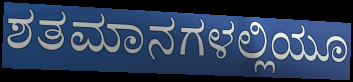
ಶತಮಾನಗಳಲ್ಲಿಯೂ